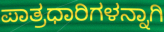
ಪಾತ್ರಧಾರಿಗಳನ್ನಾಗಿ